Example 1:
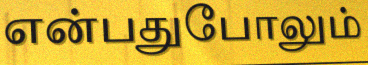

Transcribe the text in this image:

என்பதுபோலும்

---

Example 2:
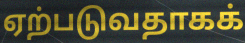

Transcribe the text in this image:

ஏற்படுவதாகக்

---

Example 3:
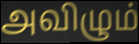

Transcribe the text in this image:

அவிழும்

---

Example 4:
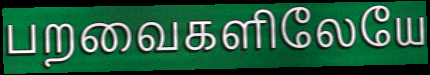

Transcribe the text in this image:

பறவைகளிலேயே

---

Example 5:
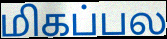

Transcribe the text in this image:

மிகப்பல